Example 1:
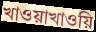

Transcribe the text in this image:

খাওয়াখাওয়ি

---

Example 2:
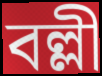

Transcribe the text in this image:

বল্লী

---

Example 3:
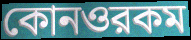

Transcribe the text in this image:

কোনওরকম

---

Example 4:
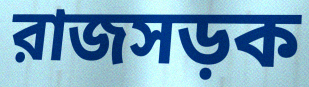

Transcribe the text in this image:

রাজসড়ক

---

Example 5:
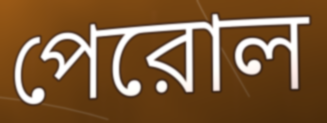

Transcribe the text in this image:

পেরোল